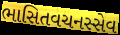
ભાસિતવચનસ્સેવ